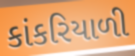
કાંકરિયાળી